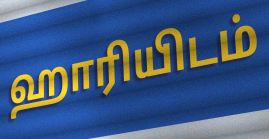
ஹாரியிடம்